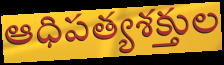
ఆధిపత్యశక్తుల